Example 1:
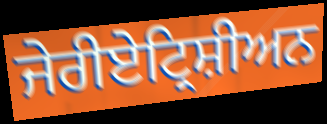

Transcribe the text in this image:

ਜੇਰੀਏਟ੍ਰਿਸ਼ੀਅਨ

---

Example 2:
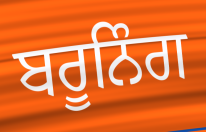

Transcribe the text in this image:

ਬਰੂਨਿੰਗ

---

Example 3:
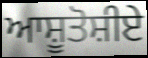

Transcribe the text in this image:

ਆਸ਼ੂਤੋਸ਼ੀਏ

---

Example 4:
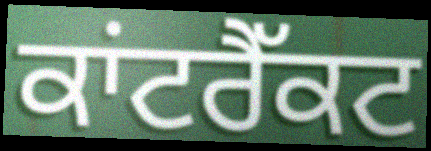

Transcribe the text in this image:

ਕਾਂਟਰੈੱਕਟ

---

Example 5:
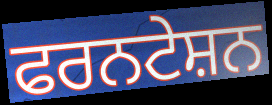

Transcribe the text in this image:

ਫਰਨਟੇਸ਼ਨ